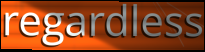
regardless